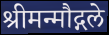
श्रीमन्मौद्गले